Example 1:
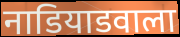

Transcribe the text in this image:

नाडियाडवाला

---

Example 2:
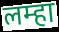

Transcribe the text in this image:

लम्हा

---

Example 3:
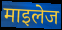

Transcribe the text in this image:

माइलेज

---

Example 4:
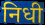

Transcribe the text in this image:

निधी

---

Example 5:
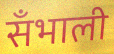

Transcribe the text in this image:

सँभाली